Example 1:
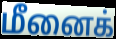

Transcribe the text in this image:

மீனைக்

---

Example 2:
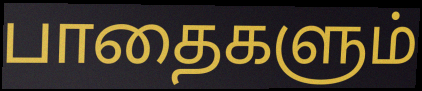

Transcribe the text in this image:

பாதைகளும்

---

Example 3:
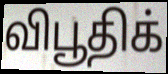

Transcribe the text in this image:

விபூதிக்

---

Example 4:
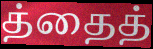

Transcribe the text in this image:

த்தைத்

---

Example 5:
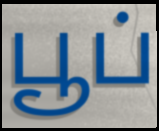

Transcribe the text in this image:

பூப்